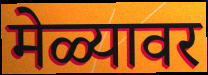
मेळ्यावर